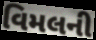
વિમલની